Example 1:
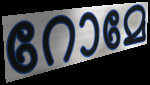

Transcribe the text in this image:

റോമേ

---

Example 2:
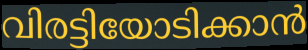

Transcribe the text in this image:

വിരട്ടിയോടിക്കാൻ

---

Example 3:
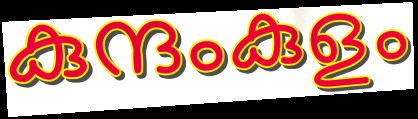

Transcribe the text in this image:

കുന്ദംകുളം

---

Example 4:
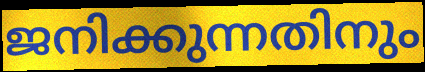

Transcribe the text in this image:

ജനിക്കുന്നതിനും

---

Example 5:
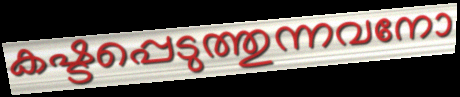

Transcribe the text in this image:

കഷ്ടപ്പെടുത്തുന്നവനോ